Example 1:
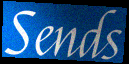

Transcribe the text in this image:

Sends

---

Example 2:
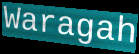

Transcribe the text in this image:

Waragah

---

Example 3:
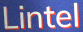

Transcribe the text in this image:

Lintel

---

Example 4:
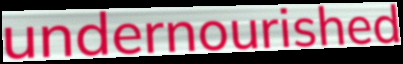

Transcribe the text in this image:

undernourished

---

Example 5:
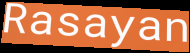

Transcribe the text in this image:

Rasayan